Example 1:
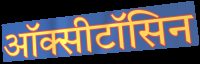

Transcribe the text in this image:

ऑक्सीटॉसिन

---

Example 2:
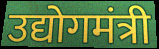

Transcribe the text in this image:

उद्योगमंत्री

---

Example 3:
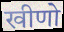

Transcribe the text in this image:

खीणो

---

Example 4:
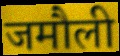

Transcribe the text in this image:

जमौली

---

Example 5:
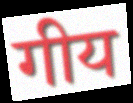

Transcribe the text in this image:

गीय